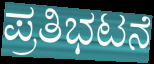
ಪ್ರತಿಭಟನೆ